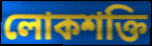
লোকশক্তি